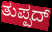
ತುಪ್ಪದ್